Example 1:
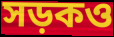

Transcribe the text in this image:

সড়কও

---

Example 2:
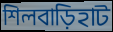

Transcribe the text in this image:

শিলবাড়িহাট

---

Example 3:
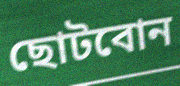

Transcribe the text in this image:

ছোটবোন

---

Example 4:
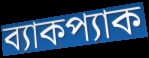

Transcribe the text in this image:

ব্যাকপ্যাক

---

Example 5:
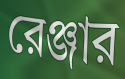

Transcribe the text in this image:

রেঞ্জার